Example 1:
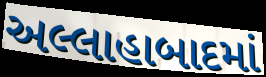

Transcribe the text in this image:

અલ્લાહાબાદમાં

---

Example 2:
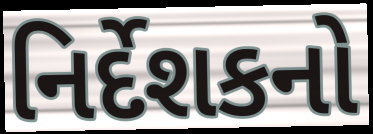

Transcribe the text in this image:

નિર્દેશકનો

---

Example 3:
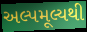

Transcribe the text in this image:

અલ્પમૂલ્યથી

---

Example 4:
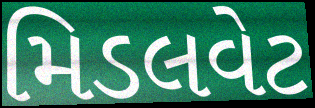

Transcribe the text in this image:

મિડલવેટ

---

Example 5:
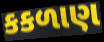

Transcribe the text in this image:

કકળાણ